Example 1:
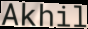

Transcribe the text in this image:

Akhil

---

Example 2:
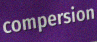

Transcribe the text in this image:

compersion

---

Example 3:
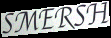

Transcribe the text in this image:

SMERSH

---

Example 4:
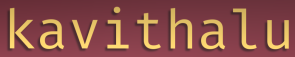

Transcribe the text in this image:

kavithalu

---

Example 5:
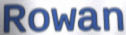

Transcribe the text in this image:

Rowan